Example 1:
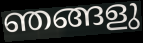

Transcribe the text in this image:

ഞങ്ങളു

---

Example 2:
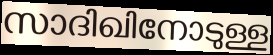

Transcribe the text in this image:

സാദിഖിനോടുള്ള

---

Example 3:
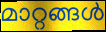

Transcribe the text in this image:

മാറ്റങ്ങൾ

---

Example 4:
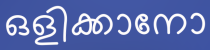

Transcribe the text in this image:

ഒളിക്കാനോ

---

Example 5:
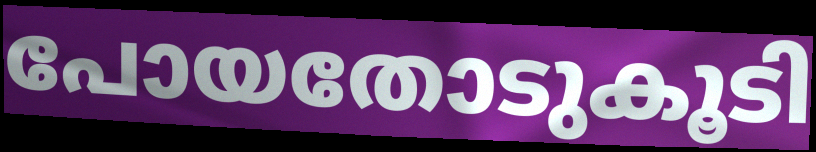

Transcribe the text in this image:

പോയതോടുകൂടി